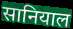
सानियाल